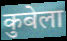
कुबेला